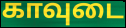
காவுடை